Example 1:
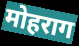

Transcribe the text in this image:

मोहराग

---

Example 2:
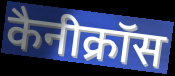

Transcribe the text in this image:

कैनीक्रॉस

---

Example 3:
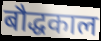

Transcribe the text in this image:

बौद्धकाल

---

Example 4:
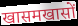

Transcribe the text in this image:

खासमखासों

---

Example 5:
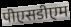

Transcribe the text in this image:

पीएसडीएम